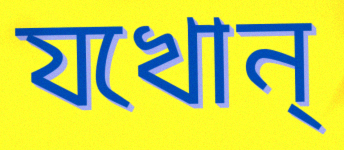
যখোন্